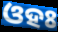
ଓହଃ